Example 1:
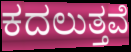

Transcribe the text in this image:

ಕದಲುತ್ತವೆ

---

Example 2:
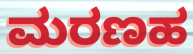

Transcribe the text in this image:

ಮರಣಹ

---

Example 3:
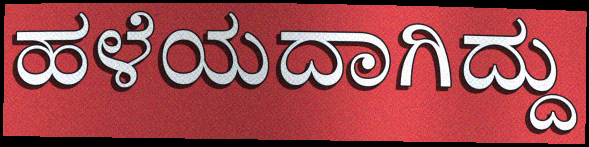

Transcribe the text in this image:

ಹಳೆಯದಾಗಿದ್ದು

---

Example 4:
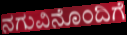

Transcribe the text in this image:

ನಗುವಿನೊಂದಿಗೆ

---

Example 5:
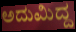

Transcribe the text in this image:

ಅದುಮಿದ್ದ